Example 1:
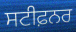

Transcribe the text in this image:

ਸਟੀਫ਼ਨਰ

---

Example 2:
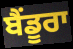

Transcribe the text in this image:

ਬੈਂਡੂਰਾ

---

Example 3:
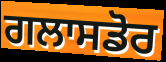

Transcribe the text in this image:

ਗਲਾਸਡੋਰ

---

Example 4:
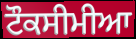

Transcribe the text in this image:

ਟੌਕਸੀਮੀਆ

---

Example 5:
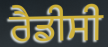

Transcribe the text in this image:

ਰੈਡੀਸੀ